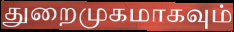
துறைமுகமாகவும்